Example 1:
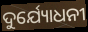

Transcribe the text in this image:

ଦୁର୍ଯ୍ୟୋଧନୀ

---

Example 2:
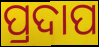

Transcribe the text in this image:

ପ୍ରଦାପ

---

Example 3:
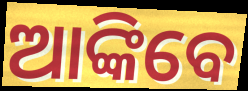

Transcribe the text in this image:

ଆଙ୍କିବେ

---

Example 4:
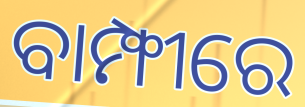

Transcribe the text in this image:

ବାମ୍ଫୀରେ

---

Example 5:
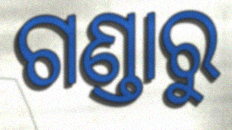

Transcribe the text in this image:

ଗଣ୍ଡାରୁ